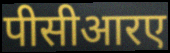
पीसीआरए